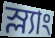
স্ল্যাং